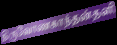
திருவோணகாந்தன்தளி